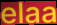
elaa